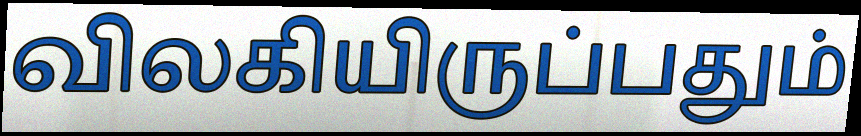
விலகியிருப்பதும்